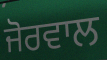
ਜੋਰਵਾਲ